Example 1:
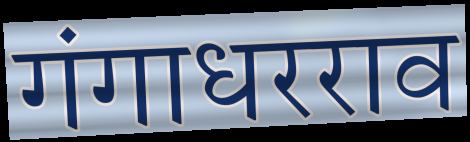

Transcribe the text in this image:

गंगाधरराव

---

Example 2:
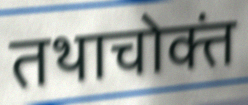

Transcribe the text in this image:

तथाचोक्तं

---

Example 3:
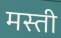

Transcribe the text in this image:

मस्‍ती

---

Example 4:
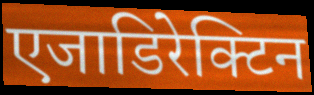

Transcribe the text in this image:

एजाडिरेक्टिन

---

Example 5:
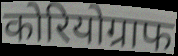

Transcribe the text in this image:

कोरियोग्राफ